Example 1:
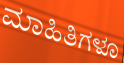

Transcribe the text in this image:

ಮಾಹಿತಿಗಳೂ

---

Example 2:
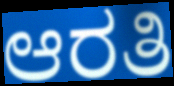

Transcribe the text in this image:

ಆರತಿ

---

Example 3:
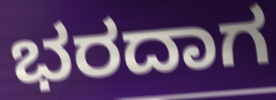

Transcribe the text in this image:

ಭರದಾಗ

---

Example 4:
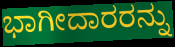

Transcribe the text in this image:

ಭಾಗೀದಾರರನ್ನು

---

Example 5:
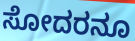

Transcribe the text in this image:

ಸೋದರನೂ